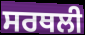
ਸਰਥਲੀ